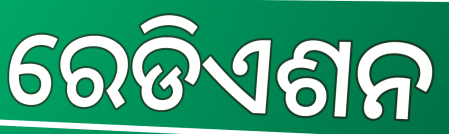
ରେଡିଏଶନ